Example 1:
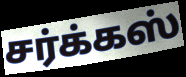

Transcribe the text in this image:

சர்க்கஸ்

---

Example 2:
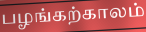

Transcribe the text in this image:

பழங்கற்காலம்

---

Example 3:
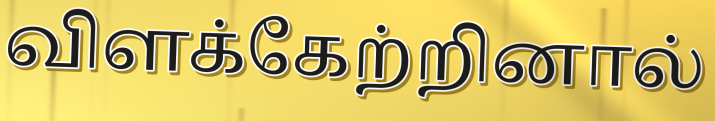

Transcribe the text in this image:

விளக்கேற்றினால்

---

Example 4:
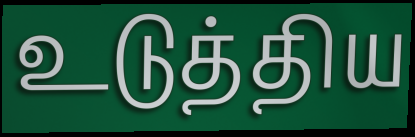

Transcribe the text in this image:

உடுத்திய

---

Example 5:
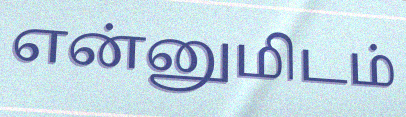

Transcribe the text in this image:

என்னுமிடம்